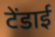
टेंडाई